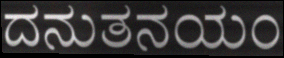
ದನುತನಯಂ